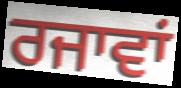
ਰਜਾਵਾਂ